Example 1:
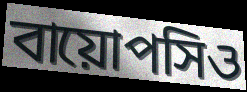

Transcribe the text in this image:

বায়োপসিও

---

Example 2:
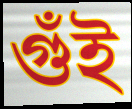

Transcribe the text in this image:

গুঁই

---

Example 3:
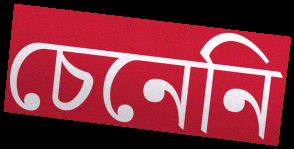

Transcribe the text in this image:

চেনেনি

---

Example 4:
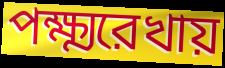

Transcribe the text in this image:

পক্ষ্মরেখায়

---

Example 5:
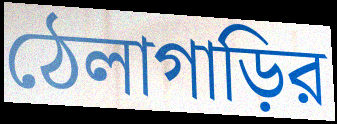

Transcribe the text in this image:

ঠেলাগাড়ির